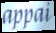
appai